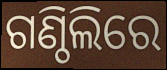
ଗଣ୍ଠିଲିରେ